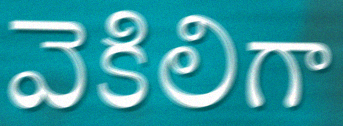
వెకిలిగా